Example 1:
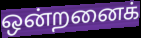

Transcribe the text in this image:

ஒன்றனைக்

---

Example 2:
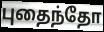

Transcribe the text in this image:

புதைந்தோ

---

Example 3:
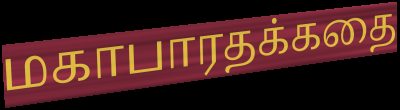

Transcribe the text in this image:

மகாபாரதக்கதை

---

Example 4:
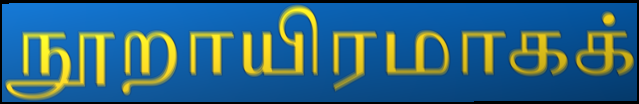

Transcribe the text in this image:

நூறாயிரமாகக்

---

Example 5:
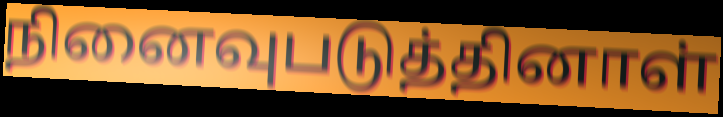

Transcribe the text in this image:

நினைவுபடுத்தினாள்